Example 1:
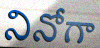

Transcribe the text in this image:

నినోగా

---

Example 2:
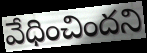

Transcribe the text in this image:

వేధించిందని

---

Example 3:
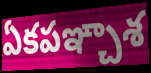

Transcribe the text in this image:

ఏకపఞ్చాశ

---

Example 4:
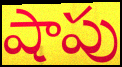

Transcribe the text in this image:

షాపు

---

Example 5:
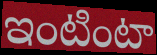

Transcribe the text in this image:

ఇంటింటా